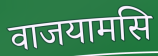
वाजयामसि